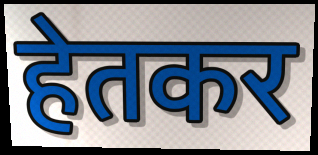
हेतकर